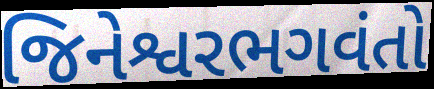
જિનેશ્વરભગવંતો